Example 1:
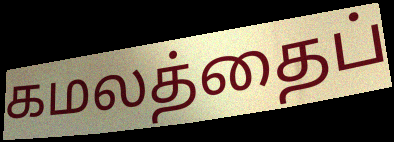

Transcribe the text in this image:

கமலத்தைப்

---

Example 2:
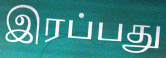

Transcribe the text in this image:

இரப்பது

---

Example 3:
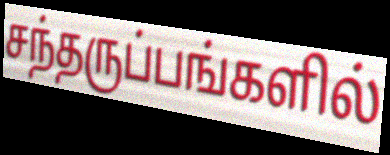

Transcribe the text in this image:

சந்தருப்பங்களில்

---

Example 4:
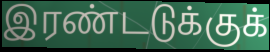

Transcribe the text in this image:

இரண்டடுக்குக்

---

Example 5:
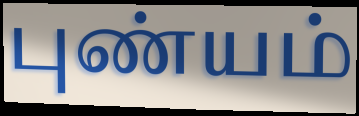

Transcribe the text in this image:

புண்யம்